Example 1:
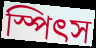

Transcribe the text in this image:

স্পিৎস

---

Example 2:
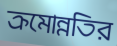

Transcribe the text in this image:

ক্রমোন্নতির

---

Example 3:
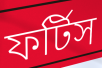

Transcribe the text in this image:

ফর্টিস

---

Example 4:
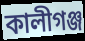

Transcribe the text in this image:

কালীগঞ্জ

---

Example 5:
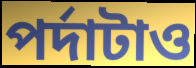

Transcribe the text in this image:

পর্দাটাও